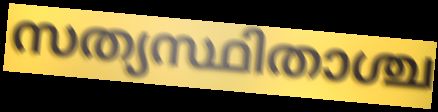
സത്യസ്ഥിതാശ്ച